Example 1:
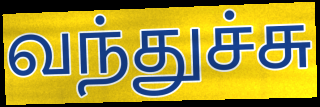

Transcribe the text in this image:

வந்துச்சு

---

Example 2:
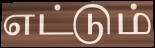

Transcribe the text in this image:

எட்டும்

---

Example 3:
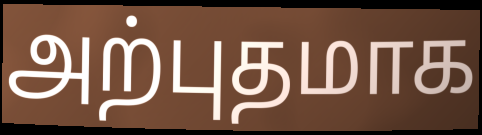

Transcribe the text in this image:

அற்புதமாக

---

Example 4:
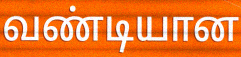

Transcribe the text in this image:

வண்டியான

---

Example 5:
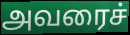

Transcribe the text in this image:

அவரைச்